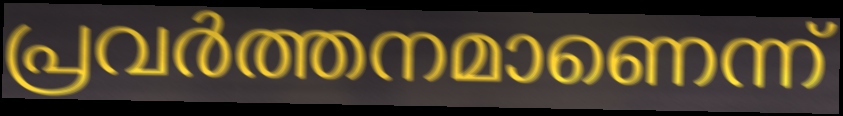
പ്രവർത്തനമാണെന്ന്